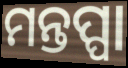
ମନ୍ତପ୍ପା